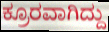
ಕ್ರೂರವಾಗಿದ್ದು